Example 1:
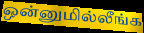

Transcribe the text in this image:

ஒன்னுமில்லீங்க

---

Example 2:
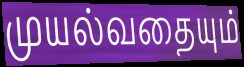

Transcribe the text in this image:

முயல்வதையும்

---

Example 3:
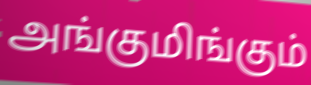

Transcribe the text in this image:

அங்குமிங்கும்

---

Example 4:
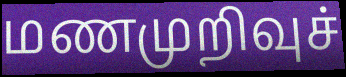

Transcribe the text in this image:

மணமுறிவுச்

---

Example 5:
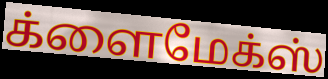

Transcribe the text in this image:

க்ளைமேக்ஸ்